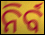
ନିର୍ବ